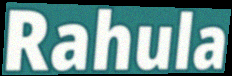
Rahula